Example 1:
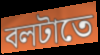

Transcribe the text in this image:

বলটাতে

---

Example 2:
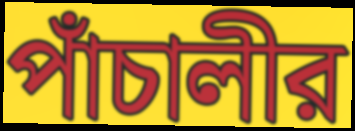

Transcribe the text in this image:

পাঁচালীর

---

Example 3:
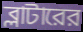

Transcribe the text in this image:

ব্লাটারের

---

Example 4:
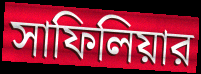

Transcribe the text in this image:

সাফিলিয়ার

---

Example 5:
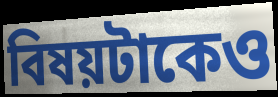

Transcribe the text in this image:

বিষয়টাকেও